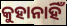
କୁହାନାହିଁ